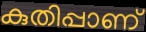
കുതിപ്പാണ്